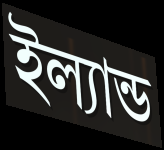
ইল্যান্ড